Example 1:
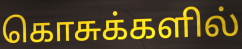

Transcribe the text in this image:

கொசுக்களில்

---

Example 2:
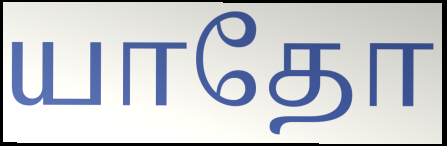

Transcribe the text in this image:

யாதோ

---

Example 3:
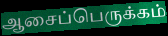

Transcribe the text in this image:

ஆசைப்பெருக்கம்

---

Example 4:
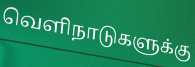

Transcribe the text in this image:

வெளிநாடுகளுக்கு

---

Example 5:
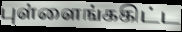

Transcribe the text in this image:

புள்ளைங்ககிட்ட